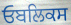
ਓਬਲਿਕਸ